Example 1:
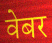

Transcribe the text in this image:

वेबर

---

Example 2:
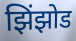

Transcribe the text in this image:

झिंझोड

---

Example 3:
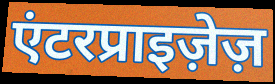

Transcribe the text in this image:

एंटरप्राइज़ेज़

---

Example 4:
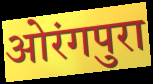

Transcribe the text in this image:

ओरंगपुरा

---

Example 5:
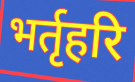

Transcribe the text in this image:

भर्तृहरि